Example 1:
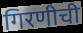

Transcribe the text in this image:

गिरणीची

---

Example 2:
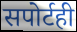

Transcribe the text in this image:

सपोर्टही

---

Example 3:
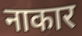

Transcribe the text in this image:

नाकार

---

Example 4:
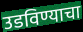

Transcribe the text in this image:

उडविण्याचा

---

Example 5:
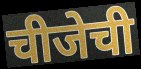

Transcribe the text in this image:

चीजेची